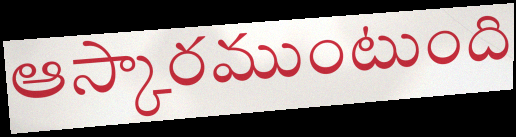
ఆస్కారముంటుంది